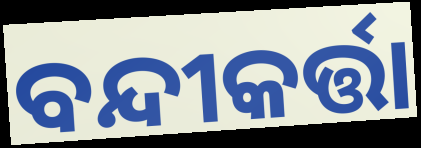
ବନ୍ଦୀକର୍ତ୍ତା